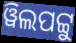
ୱିଲପଟ୍ଟୁ